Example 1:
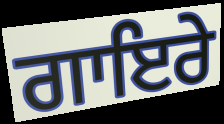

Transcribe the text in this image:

ਗਾਇਰੇ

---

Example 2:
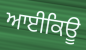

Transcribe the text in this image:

ਆਈਕਿਊ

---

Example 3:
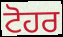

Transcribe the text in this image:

ਟੋਹਰ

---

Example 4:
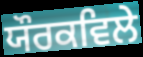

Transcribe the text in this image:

ਯੌਰਕਵਿਲੇ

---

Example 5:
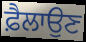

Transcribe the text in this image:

ਫ਼ੈਲਾਉਣ